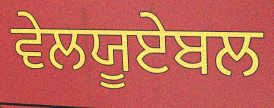
ਵੇਲਯੂਏਬਲ